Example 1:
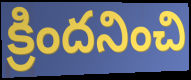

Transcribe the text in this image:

క్రిందనించి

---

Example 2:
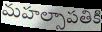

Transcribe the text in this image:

మహల్సాపతికి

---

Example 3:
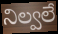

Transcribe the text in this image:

నిల్వలే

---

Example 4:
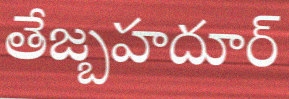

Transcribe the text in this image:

తేజ్బహదూర్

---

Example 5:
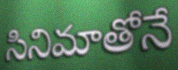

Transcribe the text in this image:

సినిమాతోనే